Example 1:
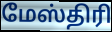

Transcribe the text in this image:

மேஸ்திரி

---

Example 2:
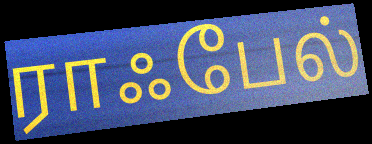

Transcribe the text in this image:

ராஃபேல்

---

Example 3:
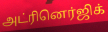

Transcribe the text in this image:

அட்ரினெர்ஜிக்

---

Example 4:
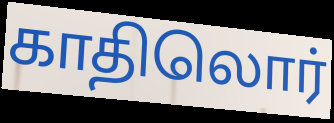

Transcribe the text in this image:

காதிலொர்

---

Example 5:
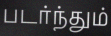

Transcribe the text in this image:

படர்ந்தும்